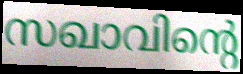
സഖാവിന്റെ